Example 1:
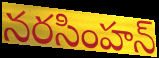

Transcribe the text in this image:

నరసింహన్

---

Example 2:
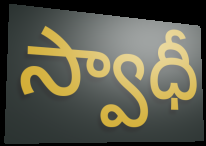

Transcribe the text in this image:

స్వాధీ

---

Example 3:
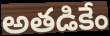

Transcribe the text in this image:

అతడికేం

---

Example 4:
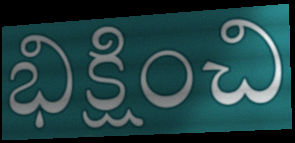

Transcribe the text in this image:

భిక్షించి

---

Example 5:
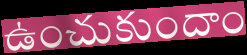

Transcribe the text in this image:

ఉంచుకుందాం